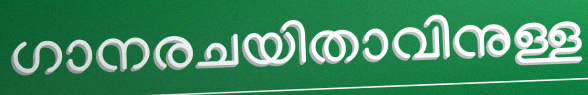
ഗാനരചയിതാവിനുള്ള